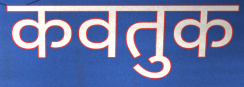
कवतुक